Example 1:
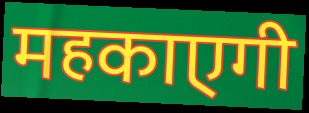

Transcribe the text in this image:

महकाएगी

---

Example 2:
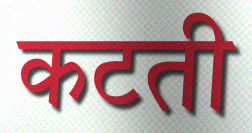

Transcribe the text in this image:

कटती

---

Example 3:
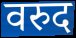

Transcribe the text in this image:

वरुद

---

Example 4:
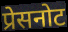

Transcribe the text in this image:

प्रेसनोट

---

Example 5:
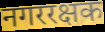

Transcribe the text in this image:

नगररक्षक